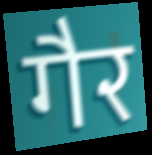
गैर